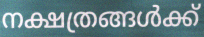
നക്ഷത്രങ്ങൾക്ക്